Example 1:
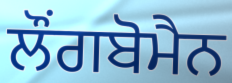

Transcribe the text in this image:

ਲੌਂਗਬੋਮੈਨ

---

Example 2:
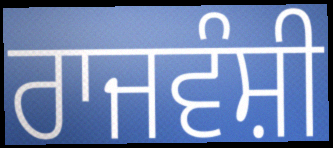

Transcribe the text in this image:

ਰਾਜਵੰਸ਼ੀ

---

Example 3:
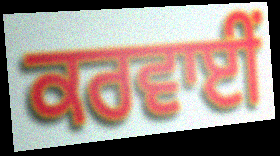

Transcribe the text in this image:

ਕਰਵਾਈਂ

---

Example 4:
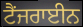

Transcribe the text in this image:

ਟੈਂਜਰਾਈਨ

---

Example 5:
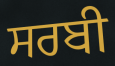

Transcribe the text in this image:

ਸਰਬੀ